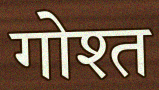
गोश्‍त